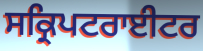
ਸਕ੍ਰਿਪਟਰਾਈਟਰ